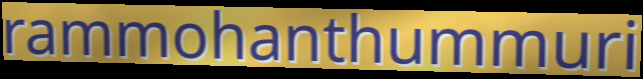
rammohanthummuri